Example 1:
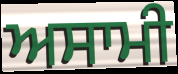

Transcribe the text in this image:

ਅਸਾਮੀ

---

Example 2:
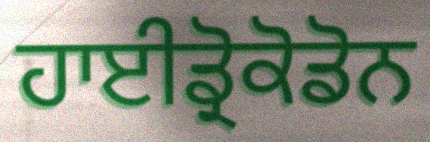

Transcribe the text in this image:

ਹਾਈਡ੍ਰੋਕੋਡੋਨ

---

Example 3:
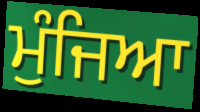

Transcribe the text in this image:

ਮੁੰਜਿਆ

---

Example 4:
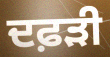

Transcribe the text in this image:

ਦਫ਼ੜੀ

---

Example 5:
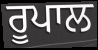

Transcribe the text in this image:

ਰੂਪਾਲ